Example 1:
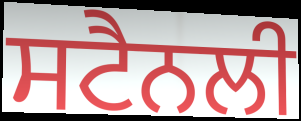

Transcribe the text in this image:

ਸਟੈਨਲੀ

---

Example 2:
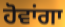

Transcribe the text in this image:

ਹੋਵਾਂਗਾ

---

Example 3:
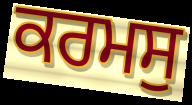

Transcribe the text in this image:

ਕਰਮਸੁ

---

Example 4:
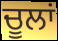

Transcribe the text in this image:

ਚੂਲਾਂ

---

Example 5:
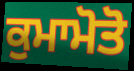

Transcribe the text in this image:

ਕੁਮਾਮੋਤੋ